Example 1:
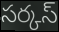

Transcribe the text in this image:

సర్కస్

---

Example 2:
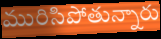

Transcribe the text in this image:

మురిసిపోతున్నారు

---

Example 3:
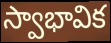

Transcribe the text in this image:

స్వాభావిక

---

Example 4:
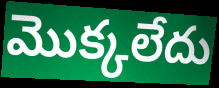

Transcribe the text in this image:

మొక్కలేదు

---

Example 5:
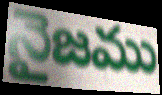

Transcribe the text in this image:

నైజము